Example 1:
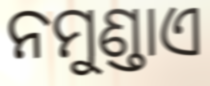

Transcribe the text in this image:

ନମୁଣ୍ଡାଏ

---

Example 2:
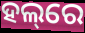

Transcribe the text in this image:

ହଲ୍‌ରେ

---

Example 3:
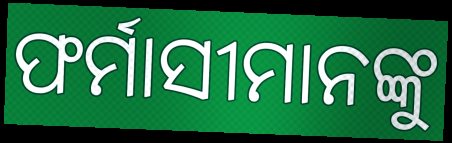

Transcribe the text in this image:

ଫର୍ମାସୀମାନଙ୍କୁ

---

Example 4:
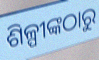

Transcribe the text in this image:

ଶିଳ୍ପୀଙ୍କଠାରୁ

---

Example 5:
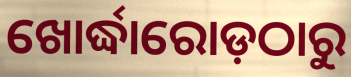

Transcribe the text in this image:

ଖୋର୍ଦ୍ଧାରୋଡ଼ଠାରୁ